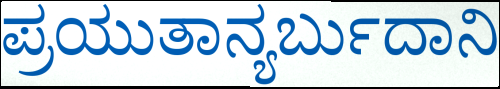
ಪ್ರಯುತಾನ್ಯರ್ಬುದಾನಿ